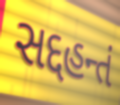
સદ્દહન્તં